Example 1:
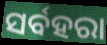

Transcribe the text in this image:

ସର୍ବହରା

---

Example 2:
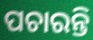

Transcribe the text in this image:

ପଚାରନ୍ତି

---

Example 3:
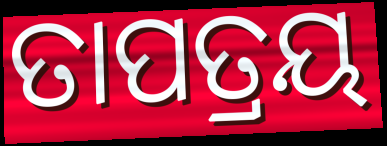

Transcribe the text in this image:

ତାପତ୍ରୟ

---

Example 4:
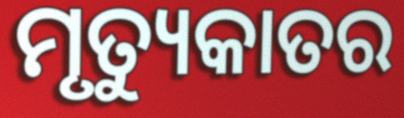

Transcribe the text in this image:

ମୃତ୍ୟୁକାତର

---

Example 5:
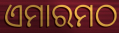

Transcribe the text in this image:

ଏମାରମଠ